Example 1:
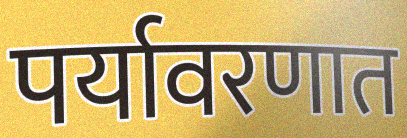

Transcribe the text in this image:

पर्यावरणात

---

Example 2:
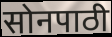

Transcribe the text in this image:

सोनपाठी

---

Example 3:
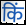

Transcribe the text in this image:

किं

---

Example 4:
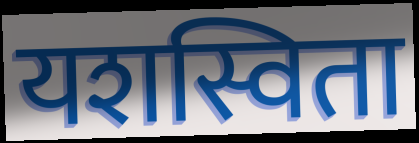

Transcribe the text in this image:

यशस्विता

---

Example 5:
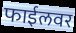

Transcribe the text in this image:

फाईलवर